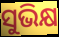
ସୁଭିକ୍ଷ